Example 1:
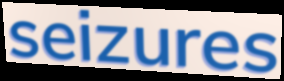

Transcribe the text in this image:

seizures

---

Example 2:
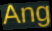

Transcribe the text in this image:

Ang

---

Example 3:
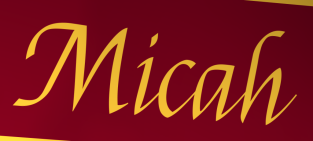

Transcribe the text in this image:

Micah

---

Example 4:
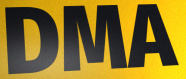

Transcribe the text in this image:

DMA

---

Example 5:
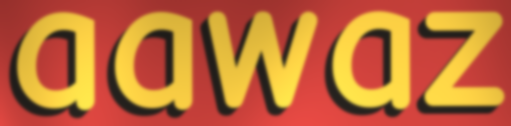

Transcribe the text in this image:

aawaz